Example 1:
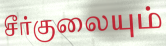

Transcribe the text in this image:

சீர்குலையும்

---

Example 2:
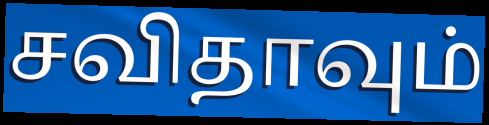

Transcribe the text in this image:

சவிதாவும்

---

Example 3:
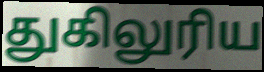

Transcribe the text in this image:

துகிலுரிய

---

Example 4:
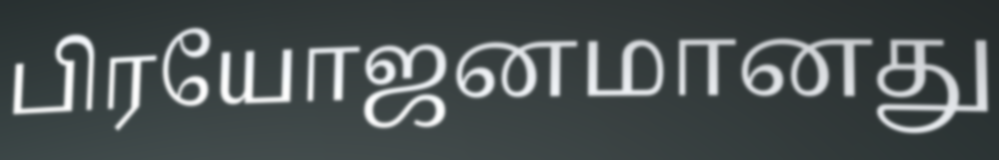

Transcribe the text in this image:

பிரயோஜனமானது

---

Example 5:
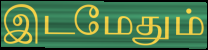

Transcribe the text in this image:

இடமேதும்